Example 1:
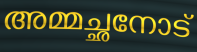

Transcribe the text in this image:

അമ്മച്ഛനോട്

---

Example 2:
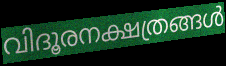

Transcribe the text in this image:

വിദൂരനക്ഷത്രങ്ങൾ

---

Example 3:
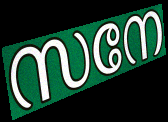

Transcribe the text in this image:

സനേ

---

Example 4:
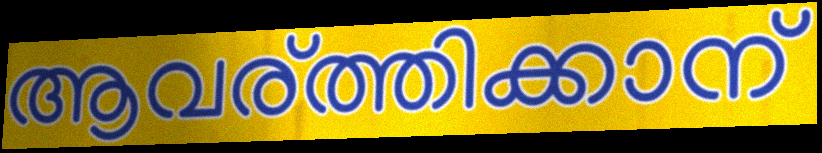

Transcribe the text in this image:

ആവര്ത്തിക്കാന്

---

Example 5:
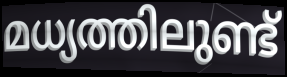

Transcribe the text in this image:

മധ്യത്തിലുണ്ട്